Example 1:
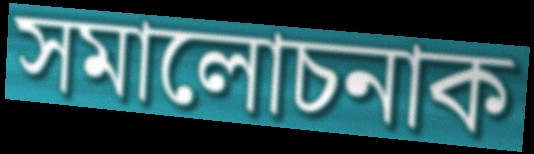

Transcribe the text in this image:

সমালোচনাক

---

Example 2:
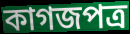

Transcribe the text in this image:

কাগজপত্ৰ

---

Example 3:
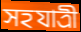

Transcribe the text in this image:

সহযাত্ৰী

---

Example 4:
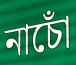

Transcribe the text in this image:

নাচোঁ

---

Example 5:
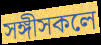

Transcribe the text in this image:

সঙ্গীসকলে